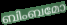
ബിംബമോ